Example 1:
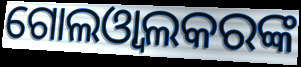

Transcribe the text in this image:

ଗୋଲଓ୍ଵାଲକରଙ୍କ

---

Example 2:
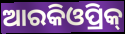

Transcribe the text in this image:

ଆରକିଓପ୍ରିକ୍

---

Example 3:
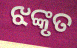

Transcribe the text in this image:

ଝଙ୍କୃତ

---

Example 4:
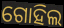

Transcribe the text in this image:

ଗୋହିଲ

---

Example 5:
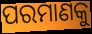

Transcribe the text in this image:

ପରମାଣକୁ